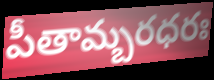
పీతామ్బరధరః